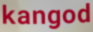
kangod